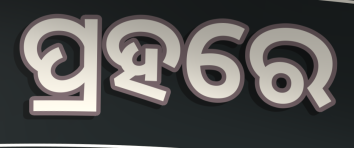
ପ୍ରହରେ